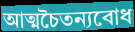
আত্মচৈতন্যবোধ